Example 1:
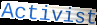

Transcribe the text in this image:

Activist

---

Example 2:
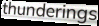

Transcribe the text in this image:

thunderings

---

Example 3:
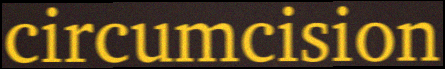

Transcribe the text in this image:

circumcision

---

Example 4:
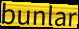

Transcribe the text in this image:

bunlar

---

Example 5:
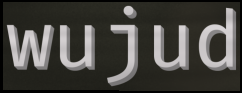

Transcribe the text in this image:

wujud